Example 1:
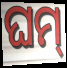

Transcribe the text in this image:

ଘମ୍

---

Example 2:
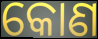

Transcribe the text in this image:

କୋଣ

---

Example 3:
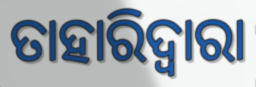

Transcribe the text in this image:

ତାହାରିଦ୍ଵାରା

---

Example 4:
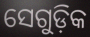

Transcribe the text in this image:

ସେଗୁଡ଼ିକ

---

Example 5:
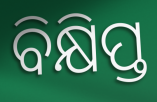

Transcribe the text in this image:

ବିକ୍ଷିପ୍ତ